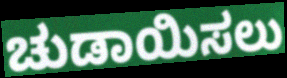
ಚುಡಾಯಿಸಲು